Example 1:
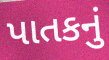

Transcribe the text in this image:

પાતકનું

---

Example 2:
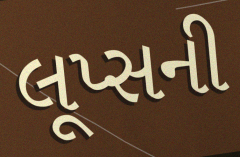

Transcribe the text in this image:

લૂપ્સની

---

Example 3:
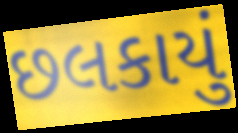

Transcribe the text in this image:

છલકાયું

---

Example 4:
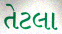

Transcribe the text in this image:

તેટલા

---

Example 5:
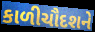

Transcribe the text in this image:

કાળીચૌદશને